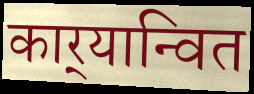
कार्यान्वित